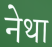
नेथा